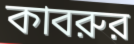
কাবরুর